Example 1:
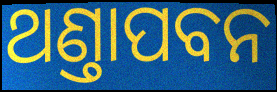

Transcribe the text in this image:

ଥଣ୍ତାପବନ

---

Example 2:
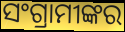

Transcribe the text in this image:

ସଂଗ୍ରାମୀଙ୍କର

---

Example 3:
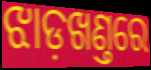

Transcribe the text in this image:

ଝାଡ଼ଖଣ୍ତରେ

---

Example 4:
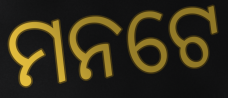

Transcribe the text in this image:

ମନଟେ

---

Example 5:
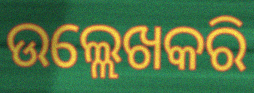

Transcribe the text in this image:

ଉଲ୍ଲେଖକରି